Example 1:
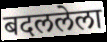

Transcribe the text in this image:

बदललेला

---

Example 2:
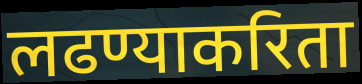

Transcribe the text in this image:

लढण्याकरिता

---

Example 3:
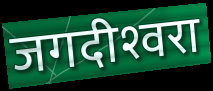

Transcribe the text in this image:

जगदीश्वरा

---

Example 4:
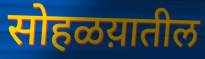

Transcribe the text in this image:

सोहळय़ातील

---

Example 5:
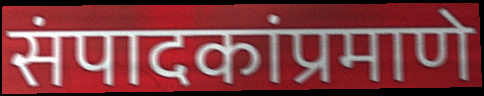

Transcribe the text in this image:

संपादकांप्रमाणे